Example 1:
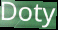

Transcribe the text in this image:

Doty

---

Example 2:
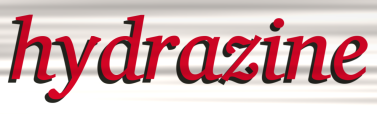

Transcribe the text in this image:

hydrazine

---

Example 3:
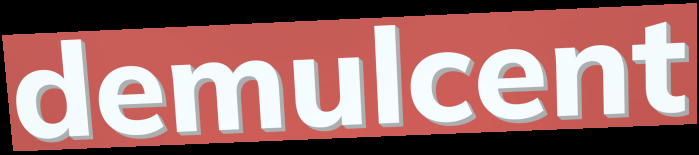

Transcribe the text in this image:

demulcent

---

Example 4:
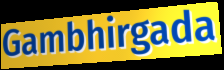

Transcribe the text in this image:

Gambhirgada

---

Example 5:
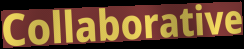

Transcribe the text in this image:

Collaborative